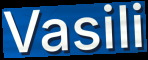
Vasili